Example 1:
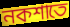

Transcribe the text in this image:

নকশাতে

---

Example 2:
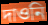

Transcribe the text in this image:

দাওনি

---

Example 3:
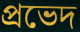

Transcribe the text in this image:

প্রভেদ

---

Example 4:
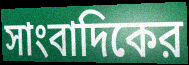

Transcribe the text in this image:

সাংবাদিকের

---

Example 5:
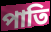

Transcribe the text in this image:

পাতি